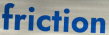
friction